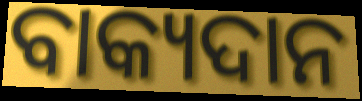
ବାକ୍ୟଦାନ